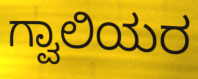
ಗ್ವಾಲಿಯರ